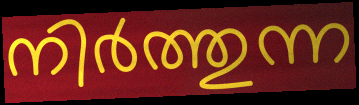
നിർത്തുന്ന